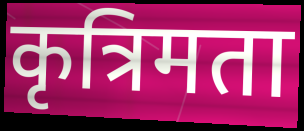
कृत्रिमता